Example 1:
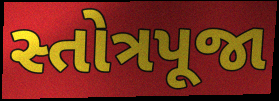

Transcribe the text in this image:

સ્તોત્રપૂજા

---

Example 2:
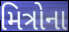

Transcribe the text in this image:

મિત્રોના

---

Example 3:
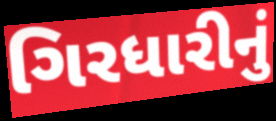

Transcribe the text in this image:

ગિરધારીનું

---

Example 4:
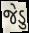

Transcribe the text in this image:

જેડુ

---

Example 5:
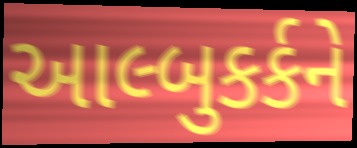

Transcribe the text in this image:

આલ્બુકર્કને